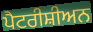
ਪੈਟਰੀਸ਼ੀਅਨ